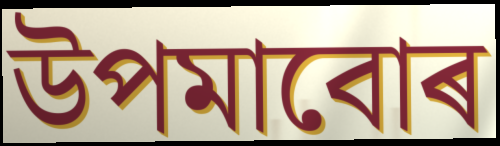
উপমাবোৰ